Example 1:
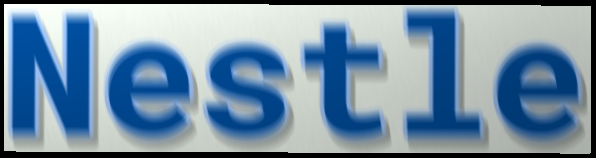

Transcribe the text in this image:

Nestle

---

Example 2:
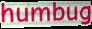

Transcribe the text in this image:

humbug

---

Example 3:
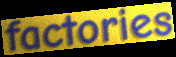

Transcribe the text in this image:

factories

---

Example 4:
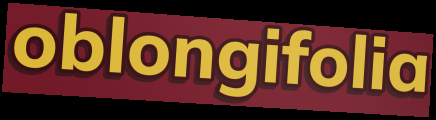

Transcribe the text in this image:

oblongifolia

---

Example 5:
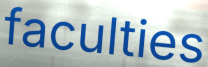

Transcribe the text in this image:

faculties